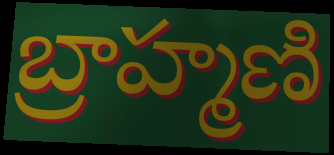
బ్రాహ్మణి